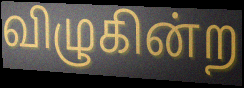
விழுகின்ற